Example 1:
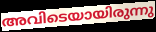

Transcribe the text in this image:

അവിടെയായിരുന്നു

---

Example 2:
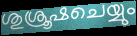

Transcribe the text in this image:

ശുശ്രൂഷചെയ്യും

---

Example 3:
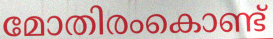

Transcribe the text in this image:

മോതിരംകൊണ്ട്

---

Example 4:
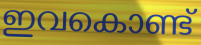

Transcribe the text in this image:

ഇവകൊണ്ട്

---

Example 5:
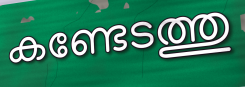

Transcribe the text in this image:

കണ്ടേടത്തു